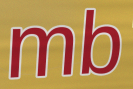
mb